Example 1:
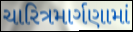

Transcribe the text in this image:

ચારિત્રમાર્ગણામાં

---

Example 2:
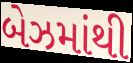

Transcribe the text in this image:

બેઝમાંથી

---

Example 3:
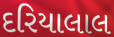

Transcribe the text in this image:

દરિયાલાલ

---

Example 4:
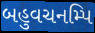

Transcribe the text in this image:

બહુવચનમ્પિ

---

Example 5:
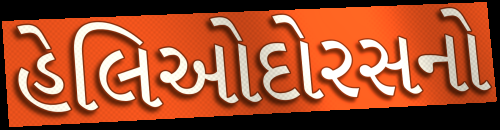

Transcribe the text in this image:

હેલિઓદોરસનો